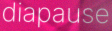
diapause